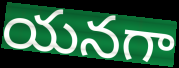
యనగా